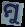
ମୁ